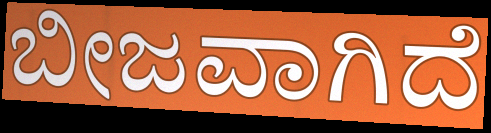
ಬೀಜವಾಗಿದೆ